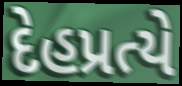
દેહપ્રત્યે